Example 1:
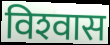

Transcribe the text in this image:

विश्‍वास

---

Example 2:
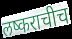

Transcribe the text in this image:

लष्कराचीच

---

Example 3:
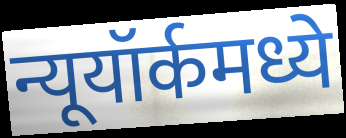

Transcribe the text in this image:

न्यूयॉर्कमध्ये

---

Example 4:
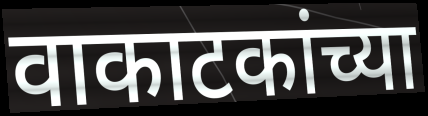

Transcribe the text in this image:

वाकाटकांच्या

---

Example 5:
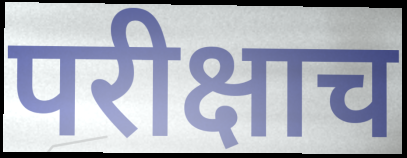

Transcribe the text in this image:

परीक्षाच